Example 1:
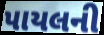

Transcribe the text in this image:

પાયલની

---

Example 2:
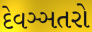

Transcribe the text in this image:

દેવઞ્ઞતરો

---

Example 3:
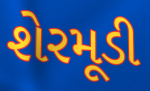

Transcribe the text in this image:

શેરમૂડી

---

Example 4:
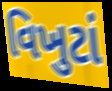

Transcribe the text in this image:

વિખુટાં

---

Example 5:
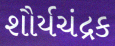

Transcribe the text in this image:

શૌર્યચંદ્રક